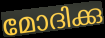
മോദിക്കു